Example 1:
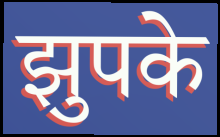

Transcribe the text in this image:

झुपके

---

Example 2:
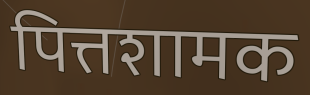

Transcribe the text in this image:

पित्तशामक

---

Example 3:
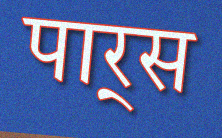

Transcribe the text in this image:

पार्स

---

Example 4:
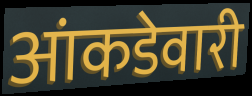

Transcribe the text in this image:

आंकडेवारी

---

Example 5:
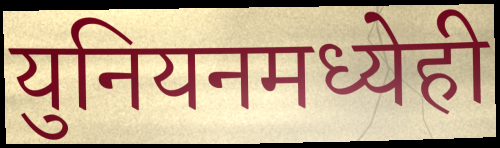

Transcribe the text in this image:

युनियनमध्येही